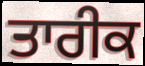
ਤਾਰੀਕ